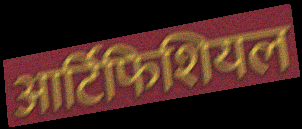
आर्टिफिशियल